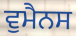
ਵੁਮੈਨਸ